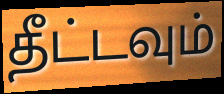
தீட்டவும்